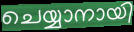
ചെയ്യാനായി